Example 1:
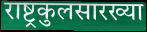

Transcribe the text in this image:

राष्ट्रकुलसारख्या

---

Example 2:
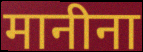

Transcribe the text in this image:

मानीना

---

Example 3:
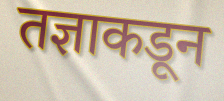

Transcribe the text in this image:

तज्ञाकडून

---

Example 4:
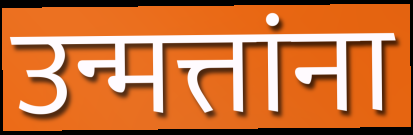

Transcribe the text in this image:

उन्मत्तांना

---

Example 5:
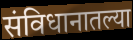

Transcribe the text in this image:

संविधानातल्या